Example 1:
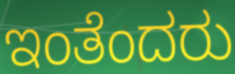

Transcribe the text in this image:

ಇಂತೆಂದರು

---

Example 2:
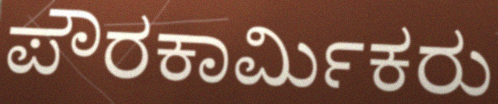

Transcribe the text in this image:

ಪೌರಕಾರ್ಮಿಕರು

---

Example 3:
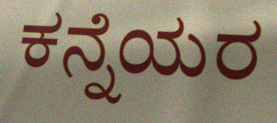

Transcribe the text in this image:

ಕನ್ನೆಯರ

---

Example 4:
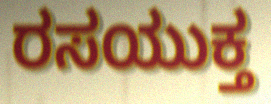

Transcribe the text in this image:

ರಸಯುಕ್ತ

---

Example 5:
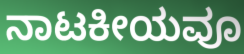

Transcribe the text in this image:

ನಾಟಕೀಯವೂ